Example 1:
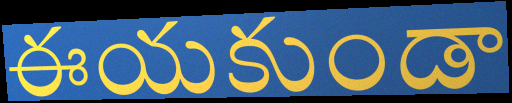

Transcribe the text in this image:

ఈయకుండా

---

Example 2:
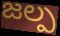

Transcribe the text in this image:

జల్ప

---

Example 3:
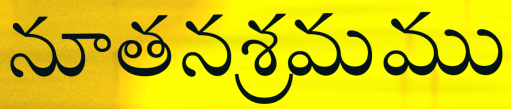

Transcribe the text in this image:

నూతనశ్రమము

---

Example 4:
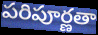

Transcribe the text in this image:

పరిపూర్ణతా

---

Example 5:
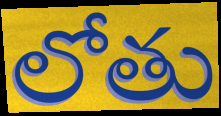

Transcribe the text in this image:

లోతు